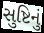
સુષ્ટિનું